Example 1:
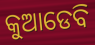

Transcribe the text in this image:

କୁଆଡେବି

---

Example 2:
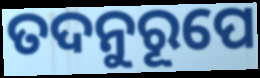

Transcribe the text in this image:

ତଦନୁରୂପେ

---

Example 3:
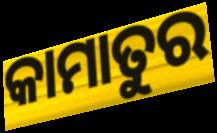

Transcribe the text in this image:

କାମାତୁର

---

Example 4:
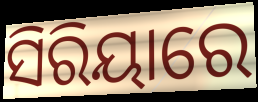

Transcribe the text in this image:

ସିରିୟାରେ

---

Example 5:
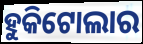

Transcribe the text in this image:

ହୁକିଟୋଲାର